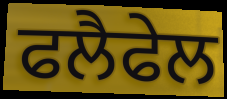
ਫਲੈਫੇਲ